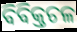
ବିବିକ୍ତଚଳ